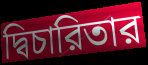
দ্বিচারিতার